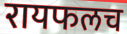
रायफलच